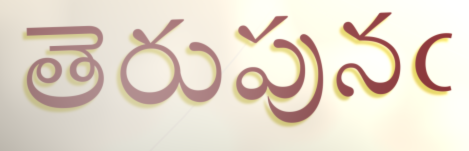
తెరుపునఁ